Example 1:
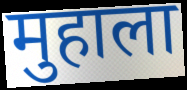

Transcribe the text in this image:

मुहाला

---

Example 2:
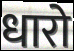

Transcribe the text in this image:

धारो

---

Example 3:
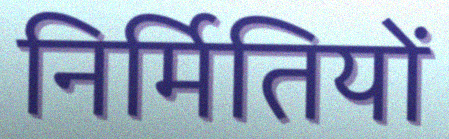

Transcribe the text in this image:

निर्मितियों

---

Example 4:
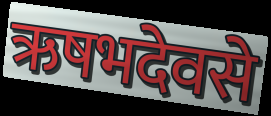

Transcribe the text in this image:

ऋषभदेवसे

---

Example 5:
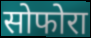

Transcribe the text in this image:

सोफोरा